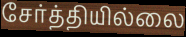
சேர்த்தியில்லை